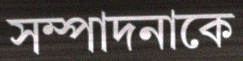
সম্পাদনাকে